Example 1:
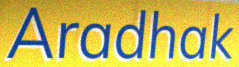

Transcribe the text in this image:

Aradhak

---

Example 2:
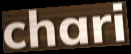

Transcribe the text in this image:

chari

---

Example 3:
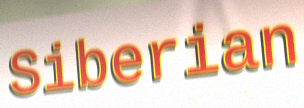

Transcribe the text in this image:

Siberian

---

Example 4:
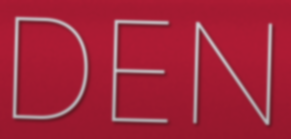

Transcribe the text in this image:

DEN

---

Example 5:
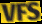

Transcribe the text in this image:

VFS